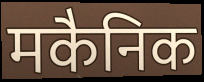
मकैनिक